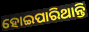
ହୋଇପାରିଥାନ୍ତି